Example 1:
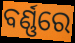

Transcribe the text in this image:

ବର୍ଣ୍ଣରେ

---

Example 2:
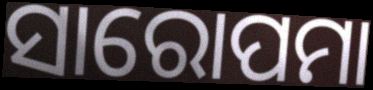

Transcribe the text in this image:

ସାରୋପମା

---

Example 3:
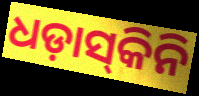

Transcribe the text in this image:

ଧଡ଼ାସ୍‌କିନି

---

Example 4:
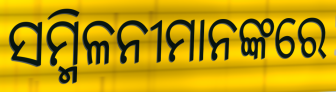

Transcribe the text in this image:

ସମ୍ମିଳନୀମାନଙ୍କରେ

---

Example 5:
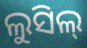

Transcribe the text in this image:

ଲୁସିଲ୍